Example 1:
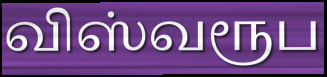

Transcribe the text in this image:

விஸ்வரூப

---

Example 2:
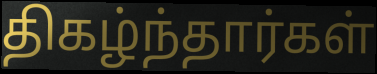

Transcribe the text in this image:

திகழ்ந்தார்கள்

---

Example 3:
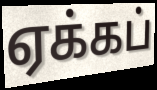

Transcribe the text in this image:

ஏக்கப்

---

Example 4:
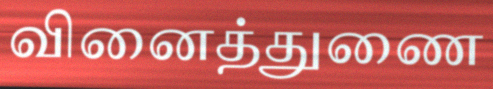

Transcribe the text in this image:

வினைத்துணை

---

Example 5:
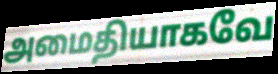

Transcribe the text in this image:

அமைதியாகவே